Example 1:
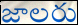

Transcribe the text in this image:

జాలరు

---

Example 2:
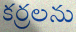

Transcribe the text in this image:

కర్రలను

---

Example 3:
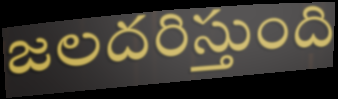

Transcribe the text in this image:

జలదరిస్తుంది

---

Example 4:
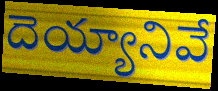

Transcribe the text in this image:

దెయ్యానివే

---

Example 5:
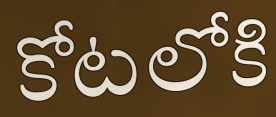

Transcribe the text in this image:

కోటలోకి